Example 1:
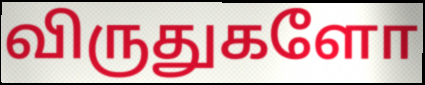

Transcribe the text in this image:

விருதுகளோ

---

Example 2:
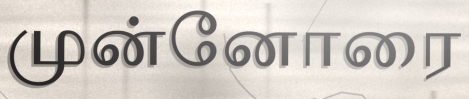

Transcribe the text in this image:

முன்னோரை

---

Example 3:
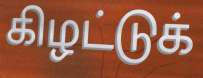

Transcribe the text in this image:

கிழட்டுக்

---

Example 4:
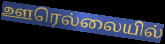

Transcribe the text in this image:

ஊரெல்லையில்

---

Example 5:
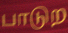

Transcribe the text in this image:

பாடுற